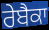
ਰੇਬੈਕਾ